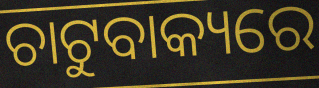
ଚାଟୁବାକ୍ୟରେ